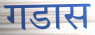
गडास